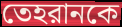
তেহরানকে